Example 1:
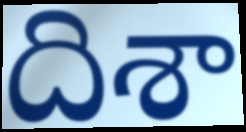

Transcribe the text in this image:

దిశా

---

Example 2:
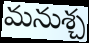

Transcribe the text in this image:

మనుశ్చ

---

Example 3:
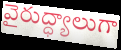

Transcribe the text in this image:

వైరుద్ధ్యాలుగా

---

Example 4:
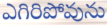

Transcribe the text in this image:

ఎగిరిపోవును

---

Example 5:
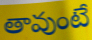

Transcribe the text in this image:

తావుంటే